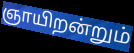
ஞாயிறன்றும்